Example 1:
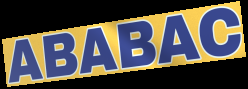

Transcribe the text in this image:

ABABAC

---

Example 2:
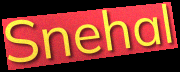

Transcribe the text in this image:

Snehal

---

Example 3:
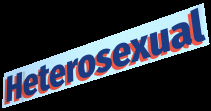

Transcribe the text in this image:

Heterosexual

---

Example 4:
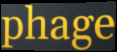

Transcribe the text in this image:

phage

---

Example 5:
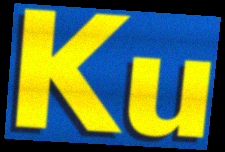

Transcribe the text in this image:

Ku